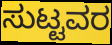
ಸುಟ್ಟವರ